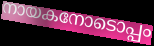
നായകനോടൊപ്പം